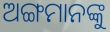
ଅଙ୍ଗମାନଙ୍କୁ